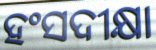
ହଂସଦୀକ୍ଷା